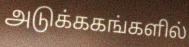
அடுக்ககங்களில்